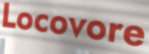
Locovore